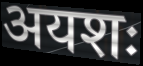
अयशः